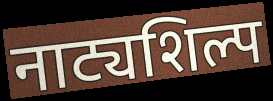
नाट्यशिल्प